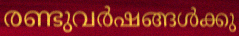
രണ്ടുവർഷങ്ങൾക്കു